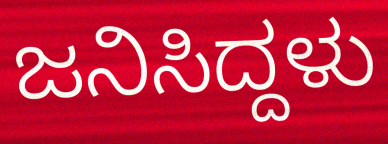
ಜನಿಸಿದ್ದಳು